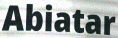
Abiatar